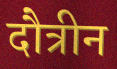
दौत्रीन